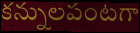
కన్నులపంటగా